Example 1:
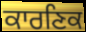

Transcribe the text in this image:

ਕਾਰਣਿਕ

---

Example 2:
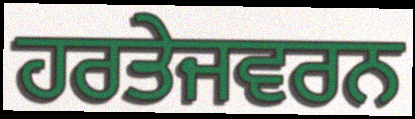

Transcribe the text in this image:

ਹਰਤੇਜਵਰਨ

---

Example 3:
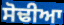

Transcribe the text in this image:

ਸੋਢੀਆ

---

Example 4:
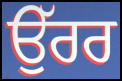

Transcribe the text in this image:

ਉੱਰਰ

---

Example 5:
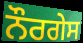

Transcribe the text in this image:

ਨੌਰਗੇਸ